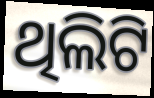
ଥିଲିଟି